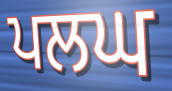
ਪਲਘ